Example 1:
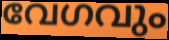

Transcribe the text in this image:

വേഗവും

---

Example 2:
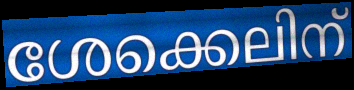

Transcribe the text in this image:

ശേക്കെലിന്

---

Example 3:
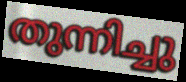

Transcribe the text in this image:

തുന്നിച്ചു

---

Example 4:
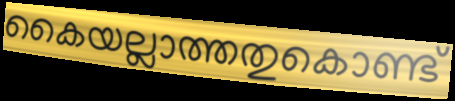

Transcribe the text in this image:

കൈയല്ലാത്തതുകൊണ്ട്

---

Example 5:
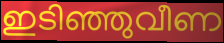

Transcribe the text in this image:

ഇടിഞ്ഞുവീണ